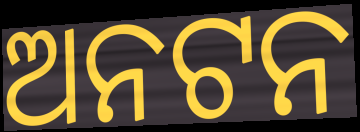
ଅନଟନ